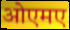
ओएमए